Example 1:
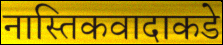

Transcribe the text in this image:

नास्तिकवादाकडे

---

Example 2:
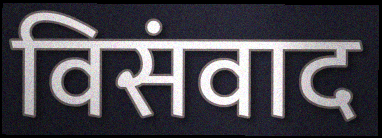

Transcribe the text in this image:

विसंवाद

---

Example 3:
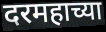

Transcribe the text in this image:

दरमहाच्या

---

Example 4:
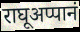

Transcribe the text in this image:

राघूअप्पानं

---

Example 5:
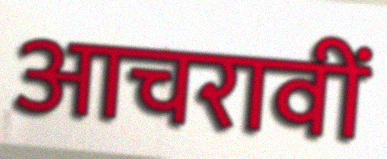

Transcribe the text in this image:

आचरावीं